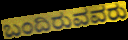
ಬಂದಿರುವವರು